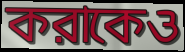
করাকেও